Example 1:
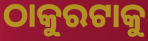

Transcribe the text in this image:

ଠାକୁରଟାକୁ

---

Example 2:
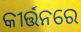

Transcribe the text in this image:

କୀର୍ତ୍ତନରେ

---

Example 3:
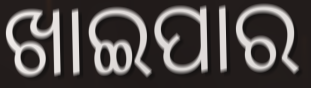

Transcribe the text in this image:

ଖାଇପାର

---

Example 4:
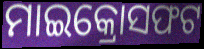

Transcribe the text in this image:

ମାଇକ୍ରୋସଫଟ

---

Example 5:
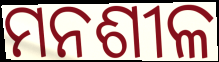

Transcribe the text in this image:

ମନଶୀଳ